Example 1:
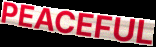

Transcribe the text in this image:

PEACEFUL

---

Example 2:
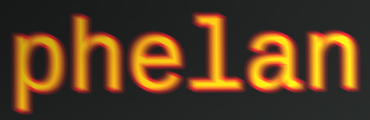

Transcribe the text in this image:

phelan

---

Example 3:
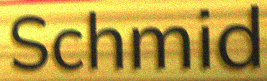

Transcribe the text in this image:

Schmid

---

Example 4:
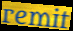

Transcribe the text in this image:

remit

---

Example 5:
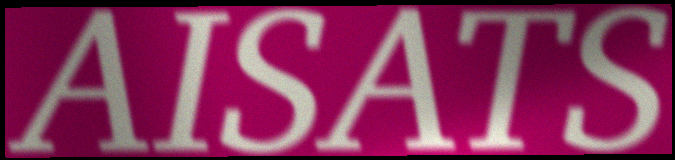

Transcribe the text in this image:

AISATS